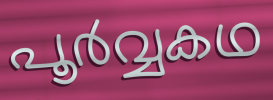
പൂർവ്വകഥ